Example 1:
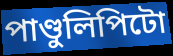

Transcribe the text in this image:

পাণ্ডুলিপিটো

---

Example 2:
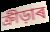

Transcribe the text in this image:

ক্ৰীড়াৰ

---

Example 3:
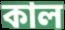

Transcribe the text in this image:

কাল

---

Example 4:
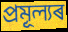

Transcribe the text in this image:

প্ৰমূল্যৰ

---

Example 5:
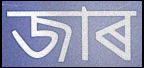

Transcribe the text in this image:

জাৰ